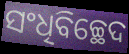
ସଂଧିବିଚ୍ଛେଦ